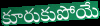
కూరుకుపోయే